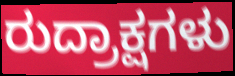
ರುದ್ರಾಕ್ಷಗಳು